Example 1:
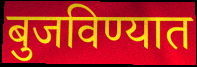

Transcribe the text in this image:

बुजविण्यात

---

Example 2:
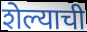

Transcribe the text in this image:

शेल्याची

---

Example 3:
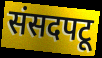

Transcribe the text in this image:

संसदपटू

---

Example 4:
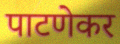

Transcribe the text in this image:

पाटणेकर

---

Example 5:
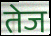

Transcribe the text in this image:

तेज